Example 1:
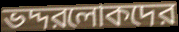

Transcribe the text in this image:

ভদ্দরলোকদের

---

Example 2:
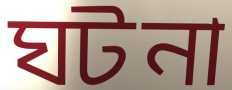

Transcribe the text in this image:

ঘটনা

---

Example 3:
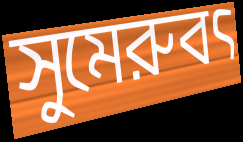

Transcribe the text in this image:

সুমেরুবৎ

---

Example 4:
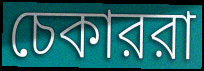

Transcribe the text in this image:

চেকাররা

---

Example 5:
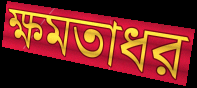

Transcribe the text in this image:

ক্ষমতাধর